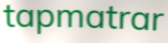
tapmatrar